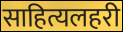
साहित्यलहरी